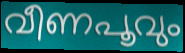
വീണപൂവും